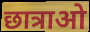
छात्राओ